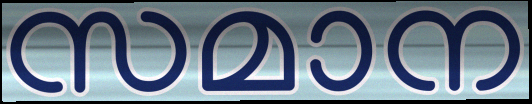
സമാന